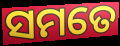
ସମତେ